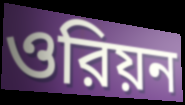
ওরিয়ন